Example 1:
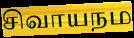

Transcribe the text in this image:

சிவாயநம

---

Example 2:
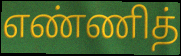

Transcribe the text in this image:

எண்ணித்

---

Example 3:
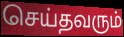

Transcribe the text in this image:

செய்தவரும்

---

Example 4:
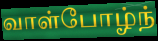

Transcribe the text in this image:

வாள்போழ்ந்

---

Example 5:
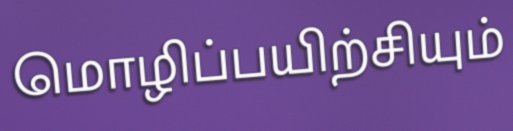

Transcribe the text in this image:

மொழிப்பயிற்சியும்